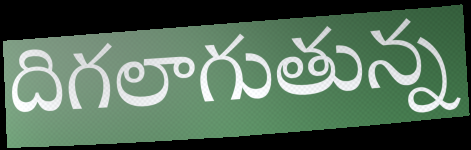
దిగలాగుతున్న